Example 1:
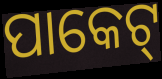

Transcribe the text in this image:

ପାକେଟ୍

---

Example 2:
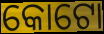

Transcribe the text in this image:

କୋଟୋ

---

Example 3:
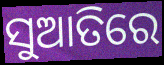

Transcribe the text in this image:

ସୁଆତିରେ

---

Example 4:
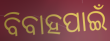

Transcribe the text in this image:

ବିବାହପାଇଁ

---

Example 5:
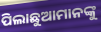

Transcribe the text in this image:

ପିଲାଛୁଆମାନଙ୍କୁ